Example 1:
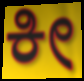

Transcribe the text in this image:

ಕೀ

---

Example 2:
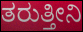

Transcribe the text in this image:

ತರುತ್ತೀನಿ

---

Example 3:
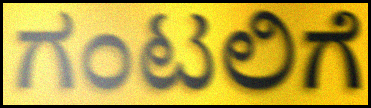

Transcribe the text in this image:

ಗಂಟಲಿಗೆ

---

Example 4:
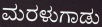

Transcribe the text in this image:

ಮರಳುಗಾಡು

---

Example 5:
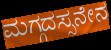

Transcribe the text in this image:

ಮಗ್ಗದಸ್ಸನೇನ